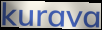
kurava